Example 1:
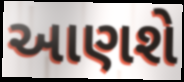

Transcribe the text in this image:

આણશે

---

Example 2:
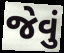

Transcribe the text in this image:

જેવું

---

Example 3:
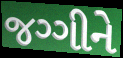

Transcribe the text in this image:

જગ્ગીને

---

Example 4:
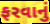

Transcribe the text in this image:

ફરવાનું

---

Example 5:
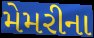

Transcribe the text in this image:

મેમરીના